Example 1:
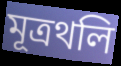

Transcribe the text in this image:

মূত্রথলি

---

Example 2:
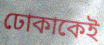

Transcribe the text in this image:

ঢোকাকেই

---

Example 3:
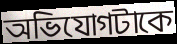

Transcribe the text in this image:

অভিযোগটাকে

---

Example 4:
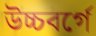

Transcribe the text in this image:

উচ্চবর্গে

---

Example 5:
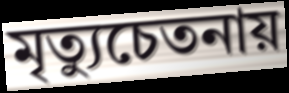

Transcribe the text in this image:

মৃত্যুচেতনায়